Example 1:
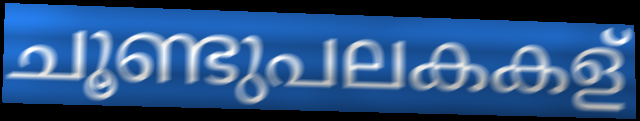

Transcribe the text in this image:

ചൂണ്ടുപലകകള്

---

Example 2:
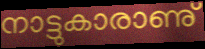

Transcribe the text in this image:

നാട്ടുകാരാണു്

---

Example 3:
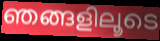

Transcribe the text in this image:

ഞങ്ങളിലൂടെ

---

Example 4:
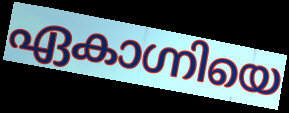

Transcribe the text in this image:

ഏകാഗ്നിയെ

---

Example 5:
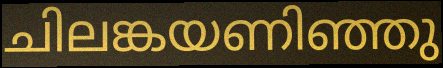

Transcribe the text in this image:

ചിലങ്കയണിഞ്ഞു